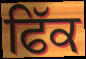
ਫਿੱਕ